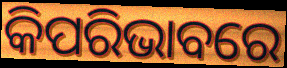
କିପରିଭାବରେ